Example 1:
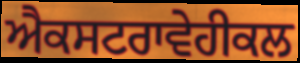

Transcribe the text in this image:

ਐਕਸਟਰਾਵੇਹੀਕਲ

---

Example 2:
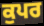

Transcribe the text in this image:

ਕੁਪਰ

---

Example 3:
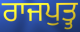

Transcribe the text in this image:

ਰਾਜਪੁਤ੍ਤ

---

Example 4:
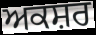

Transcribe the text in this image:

ਅਕਸ਼ਰ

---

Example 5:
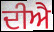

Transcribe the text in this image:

ਦੀਐ